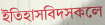
ইতিহাসবিদসকলে